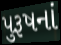
પુરૂષનાં